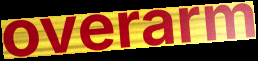
overarm